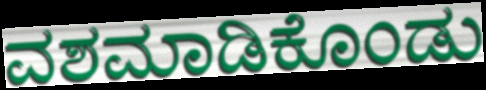
ವಶಮಾಡಿಕೊಂಡು